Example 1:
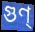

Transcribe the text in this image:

গুণ্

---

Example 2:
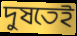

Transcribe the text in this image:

দুষতেই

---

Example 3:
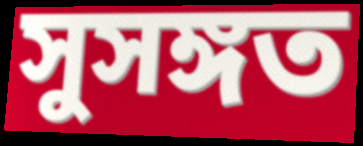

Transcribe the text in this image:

সুসঙ্গত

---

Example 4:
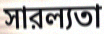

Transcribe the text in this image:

সারল্যতা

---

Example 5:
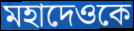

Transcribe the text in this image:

মহাদেওকে